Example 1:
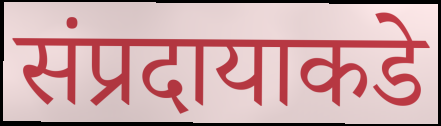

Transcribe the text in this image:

संप्रदायाकडे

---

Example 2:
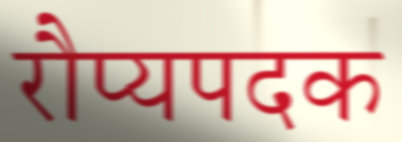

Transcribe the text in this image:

रौप्यपदक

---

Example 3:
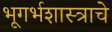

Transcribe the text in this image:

भूगर्भशास्त्राचे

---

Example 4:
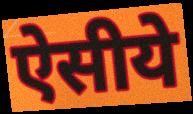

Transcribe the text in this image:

ऐसीये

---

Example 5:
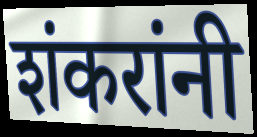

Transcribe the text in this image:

शंकरांनी